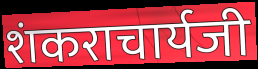
शंकराचार्यजी